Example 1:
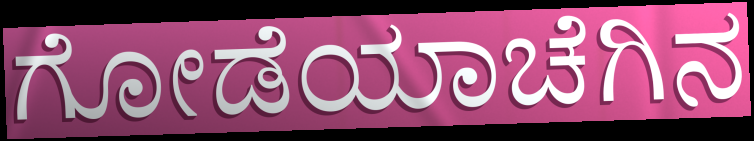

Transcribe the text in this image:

ಗೋಡೆಯಾಚೆಗಿನ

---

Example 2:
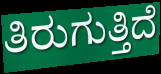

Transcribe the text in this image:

ತಿರುಗುತ್ತಿದೆ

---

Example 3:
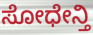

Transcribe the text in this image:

ಸೋಧೇನ್ತಿ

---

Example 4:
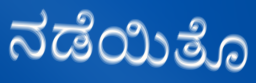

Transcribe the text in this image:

ನಡೆಯಿತೊ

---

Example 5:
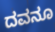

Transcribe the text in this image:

ದವನೂ